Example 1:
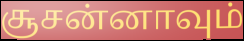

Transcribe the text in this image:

சூசன்னாவும்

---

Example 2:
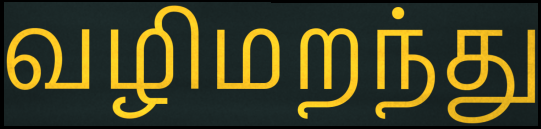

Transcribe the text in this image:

வழிமறந்து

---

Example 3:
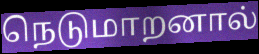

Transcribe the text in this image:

நெடுமாறனால்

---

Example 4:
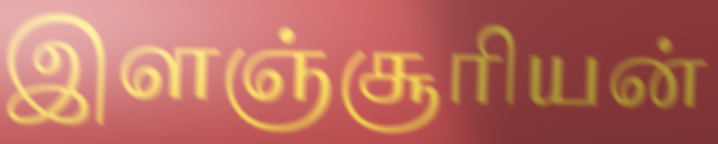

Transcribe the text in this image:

இளஞ்சூரியன்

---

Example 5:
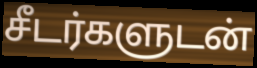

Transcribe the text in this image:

சீடர்களுடன்